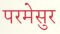
परमेसुर